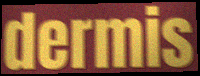
dermis